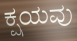
ಕ್ಷಯವು